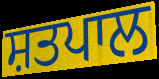
ਸ਼ਤਪਾਲ